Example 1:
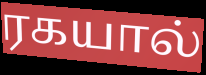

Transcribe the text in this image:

ரகயால்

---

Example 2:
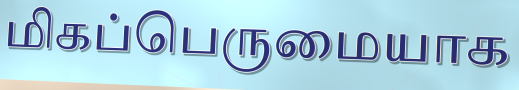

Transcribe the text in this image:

மிகப்பெருமையாக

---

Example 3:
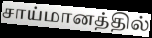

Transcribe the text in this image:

சாய்மானத்தில்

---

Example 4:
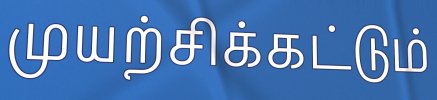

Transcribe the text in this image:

முயற்சிக்கட்டும்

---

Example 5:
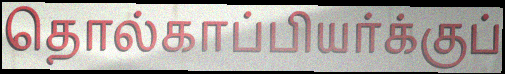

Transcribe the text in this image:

தொல்காப்பியர்க்குப்